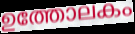
ഉത്തോലകം